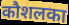
कौशलका